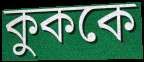
কুককে